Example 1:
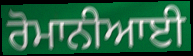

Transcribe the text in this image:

ਰੋਮਾਨੀਆਈ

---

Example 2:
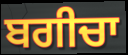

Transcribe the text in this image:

ਬਗੀਚਾ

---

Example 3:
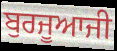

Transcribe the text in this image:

ਬੁਰਜੂਆਜੀ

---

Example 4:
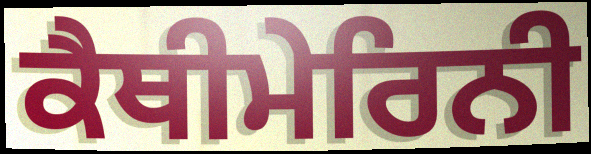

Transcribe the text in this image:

ਕੈਥੀਮੇਰਿਨੀ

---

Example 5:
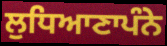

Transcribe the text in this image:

ਲੁਧਿਆਣਾਪੰਨੇ